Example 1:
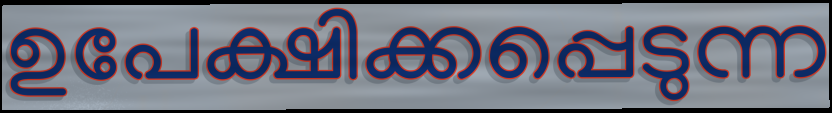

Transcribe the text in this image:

ഉപേക്ഷിക്കപ്പെടുന്ന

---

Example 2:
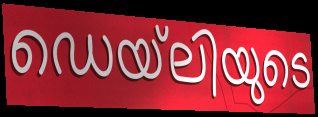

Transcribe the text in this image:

ഡെയ്‌ലിയുടെ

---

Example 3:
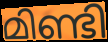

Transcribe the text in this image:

മിണ്ടി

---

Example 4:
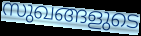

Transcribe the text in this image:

സുഖങ്ങളുടെ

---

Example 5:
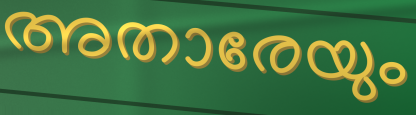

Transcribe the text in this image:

അതാരേയും